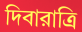
দিবারাত্রি